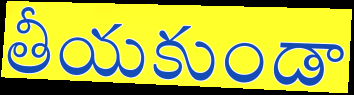
తీయకుండా